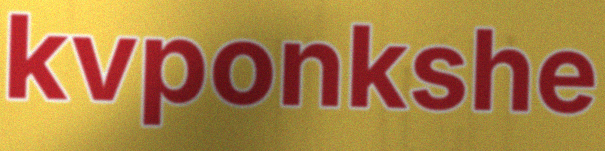
kvponkshe